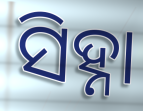
ସିହ୍ନା